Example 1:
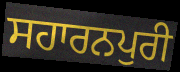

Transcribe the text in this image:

ਸਹਾਰਨਪੁਰੀ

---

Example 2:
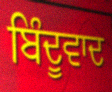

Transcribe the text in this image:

ਬਿੰਦੂਵਾਦ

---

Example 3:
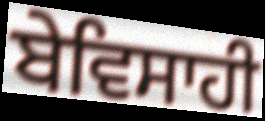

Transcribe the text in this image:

ਬੇਵਿਸਾਹੀ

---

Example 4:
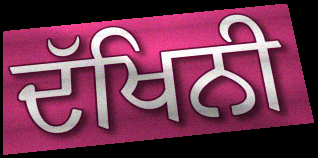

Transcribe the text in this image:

ਦੱਖਿਨੀ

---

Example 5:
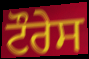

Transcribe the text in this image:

ਟੌਰੇਸ